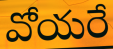
వోయరే